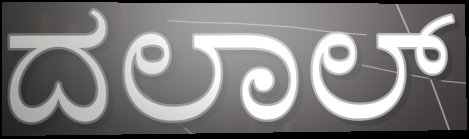
ದಲಾಲ್